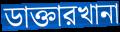
ডাক্তারখানা